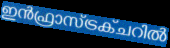
ഇൻഫ്രാസ്ട്രക്ചറിൽ